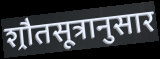
श्रौतसूत्रानुसार